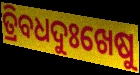
ତ୍ରିବଧଦୁଃଖେଷୁ